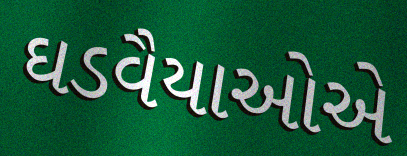
ઘડવૈયાઓએ